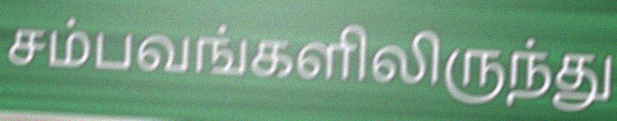
சம்பவங்களிலிருந்து